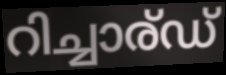
റിച്ചാര്ഡ്